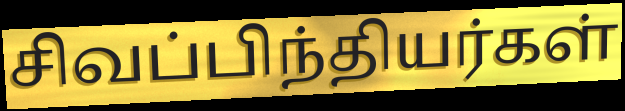
சிவப்பிந்தியர்கள்